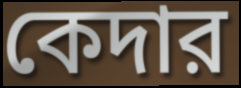
কেদার